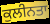
ਕੁਲੀਨਤਾ